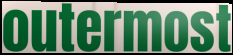
outermost